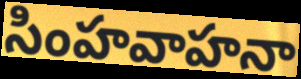
సింహవాహనా